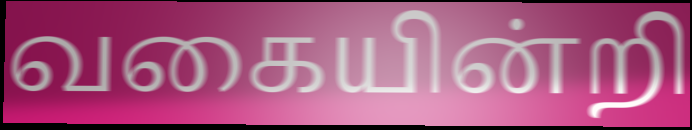
வகையின்றி